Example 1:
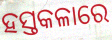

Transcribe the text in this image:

ହସ୍ତକଳାରେ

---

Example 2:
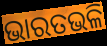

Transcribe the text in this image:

ଭାରତଭଳି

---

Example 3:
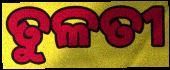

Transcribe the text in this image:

ତୁଳତୀ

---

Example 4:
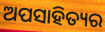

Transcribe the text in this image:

ଅପସାହିତ୍ୟର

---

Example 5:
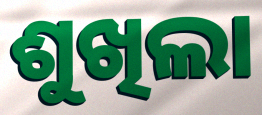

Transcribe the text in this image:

ଶୁଖିଲା